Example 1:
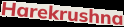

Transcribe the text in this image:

Harekrushna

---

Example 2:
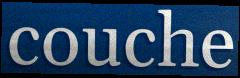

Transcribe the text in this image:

couche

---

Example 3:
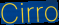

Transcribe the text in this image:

Cirro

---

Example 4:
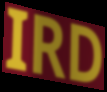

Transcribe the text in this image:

IRD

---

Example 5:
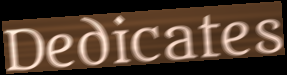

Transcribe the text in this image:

Dedicates